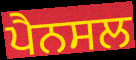
ਪੈਨਸਲ